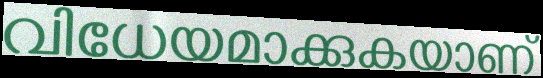
വിധേയമാക്കുകയാണ്